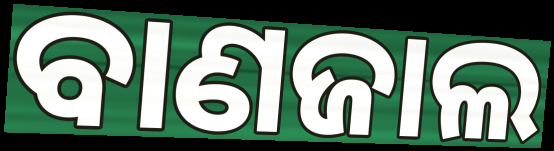
ବାଣଜାଲ